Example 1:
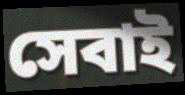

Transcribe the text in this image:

সেবাই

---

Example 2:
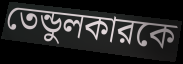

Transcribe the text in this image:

তেন্ডুলকারকে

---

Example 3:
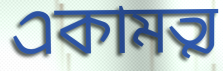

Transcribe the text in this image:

একামত্ম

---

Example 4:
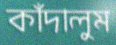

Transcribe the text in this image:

কাঁদালুম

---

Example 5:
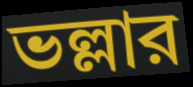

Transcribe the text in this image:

ভল্লার